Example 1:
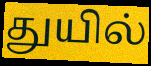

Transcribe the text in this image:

துயில்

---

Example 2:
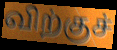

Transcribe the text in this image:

விற்குச்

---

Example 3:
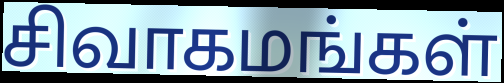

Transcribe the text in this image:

சிவாகமங்கள்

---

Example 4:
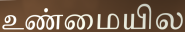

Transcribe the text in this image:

உண்மையில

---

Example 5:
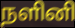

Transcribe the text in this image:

நளினி